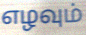
எழவும்